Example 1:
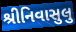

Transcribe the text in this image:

શ્રીનિવાસુલુ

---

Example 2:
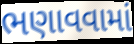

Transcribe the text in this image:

ભણાવવામાં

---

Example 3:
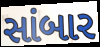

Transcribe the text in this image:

સાંબાર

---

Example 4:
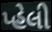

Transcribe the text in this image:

પ્હેલી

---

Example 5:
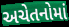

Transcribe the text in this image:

અચેતનોમાં